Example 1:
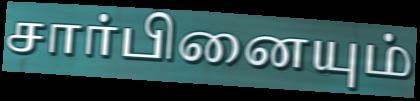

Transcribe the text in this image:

சார்பினையும்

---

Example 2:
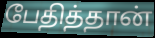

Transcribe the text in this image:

பேதித்தான்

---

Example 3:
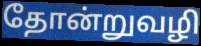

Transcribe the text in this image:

தோன்றுவழி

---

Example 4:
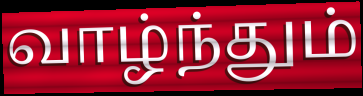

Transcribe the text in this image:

வாழ்ந்தும்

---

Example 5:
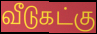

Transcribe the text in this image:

வீடுகட்கு